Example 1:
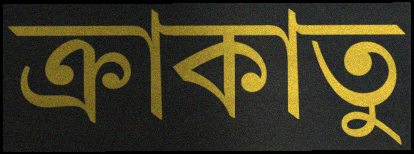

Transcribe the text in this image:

ক্রাকাতু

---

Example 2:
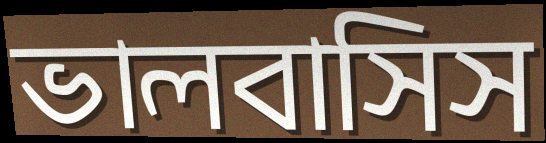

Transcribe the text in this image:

ভালবাসিস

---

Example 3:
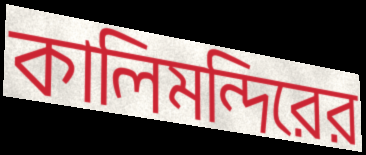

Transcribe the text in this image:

কালিমন্দিরের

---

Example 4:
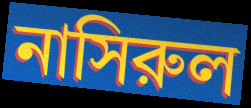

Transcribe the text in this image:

নাসিরুল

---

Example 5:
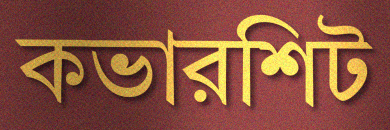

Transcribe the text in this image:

কভারশিট